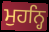
ਮੁਹਨ੍ਹ੍ਹਿ